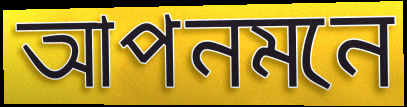
আপনমনে